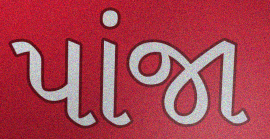
પાંજા